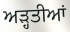
ਅੜ੍ਹਤੀਆਂ